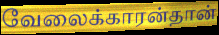
வேலைக்காரன்தான்